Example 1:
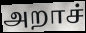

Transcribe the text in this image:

அறாச்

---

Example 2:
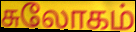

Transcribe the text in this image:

சுலோகம்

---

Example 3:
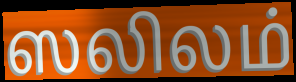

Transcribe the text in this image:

ஸலிலம்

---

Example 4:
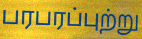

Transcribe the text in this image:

பரபரப்புற்று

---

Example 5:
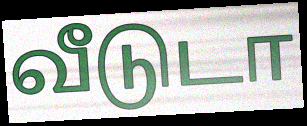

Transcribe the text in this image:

வீடுடா